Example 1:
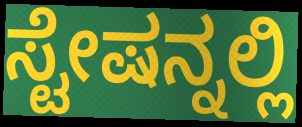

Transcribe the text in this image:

ಸ್ಟೇಷನ್ನಲ್ಲಿ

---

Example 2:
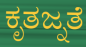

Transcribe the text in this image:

ಕೃತಜ್ನತೆ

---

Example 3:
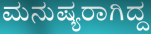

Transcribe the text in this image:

ಮನುಷ್ಯರಾಗಿದ್ದ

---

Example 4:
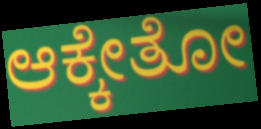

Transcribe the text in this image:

ಆಕ್ಕೇತೋ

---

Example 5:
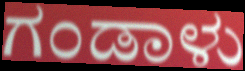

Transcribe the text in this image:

ಗಂಡಾಳು